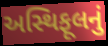
અસ્થિફૂલનું